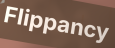
Flippancy